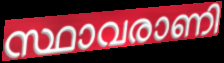
സ്ഥാവരാണി